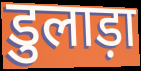
डुलाड़ा